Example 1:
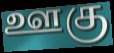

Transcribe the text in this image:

ஊகு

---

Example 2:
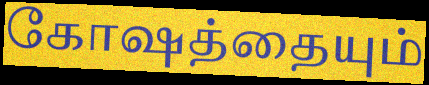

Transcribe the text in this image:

கோஷத்தையும்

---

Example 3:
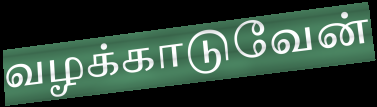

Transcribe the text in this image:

வழக்காடுவேன்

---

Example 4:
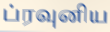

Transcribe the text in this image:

ப்ரவுனிய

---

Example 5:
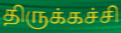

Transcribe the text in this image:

திருக்கச்சி